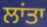
ਲਾਂਤਾ